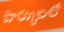
పార్కులలో